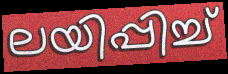
ലയിപ്പിച്ച്